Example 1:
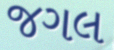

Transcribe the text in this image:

જગલ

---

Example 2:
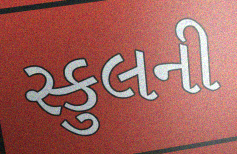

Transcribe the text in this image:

સ્કુલની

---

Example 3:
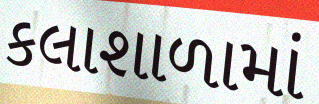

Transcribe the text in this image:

કલાશાળામાં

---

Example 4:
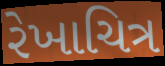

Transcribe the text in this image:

રેખાચિત્ર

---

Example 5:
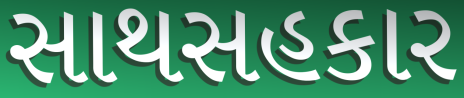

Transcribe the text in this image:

સાથસહકાર